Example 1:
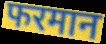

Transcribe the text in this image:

फरमान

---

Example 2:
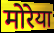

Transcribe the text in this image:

मोरेया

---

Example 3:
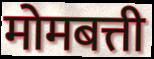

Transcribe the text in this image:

मोमबत्ती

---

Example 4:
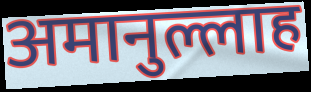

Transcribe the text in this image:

अमानुल्लाह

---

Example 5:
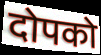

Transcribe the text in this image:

दोपको